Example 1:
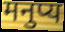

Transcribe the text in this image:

मनुप्य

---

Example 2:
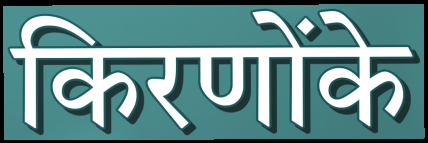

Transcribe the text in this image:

किरणोंके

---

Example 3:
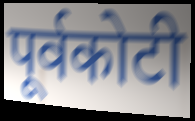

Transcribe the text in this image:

पूर्वकोटी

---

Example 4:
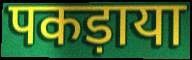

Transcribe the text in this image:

पकड़ाया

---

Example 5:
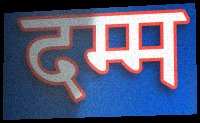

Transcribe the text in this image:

दम्म